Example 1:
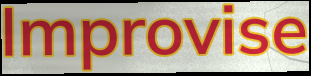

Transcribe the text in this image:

Improvise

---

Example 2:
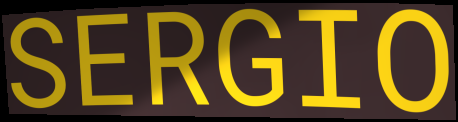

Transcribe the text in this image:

SERGIO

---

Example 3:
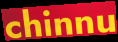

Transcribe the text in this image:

chinnu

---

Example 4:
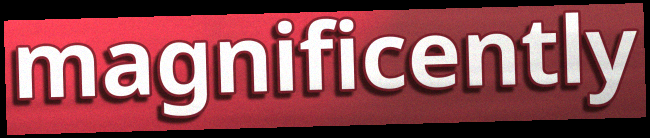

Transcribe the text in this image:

magnificently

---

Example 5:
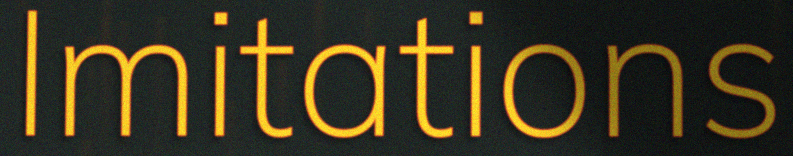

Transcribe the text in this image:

Imitations